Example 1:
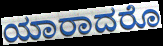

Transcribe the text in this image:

ಯಾರಾದರೊ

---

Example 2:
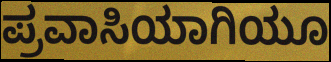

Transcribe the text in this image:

ಪ್ರವಾಸಿಯಾಗಿಯೂ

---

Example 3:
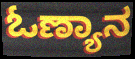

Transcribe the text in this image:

ಓಣ್ಯಾನ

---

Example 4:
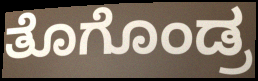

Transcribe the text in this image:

ತೊಗೊಂಡ್ರ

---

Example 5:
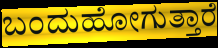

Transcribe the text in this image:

ಬಂದುಹೋಗುತ್ತಾರೆ